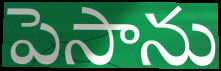
పెసాను